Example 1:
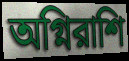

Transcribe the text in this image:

অগ্নিরাশি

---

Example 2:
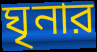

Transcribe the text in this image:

ঘৃনার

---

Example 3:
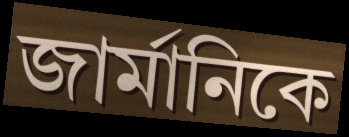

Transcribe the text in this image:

জার্মানিকে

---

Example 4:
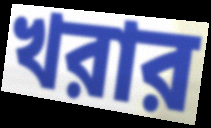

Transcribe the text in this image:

খরার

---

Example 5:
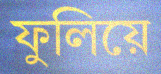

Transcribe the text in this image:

ফুলিয়ে